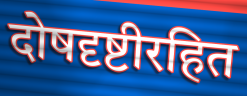
दोषदृष्टीरहित